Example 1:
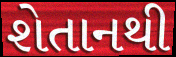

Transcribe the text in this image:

શેતાનથી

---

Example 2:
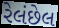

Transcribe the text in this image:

રેલંછેલ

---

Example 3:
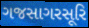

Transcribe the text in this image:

ગજસાગરસૂરિ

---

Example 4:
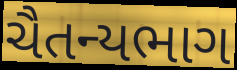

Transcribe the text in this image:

ચૈતન્યભાગ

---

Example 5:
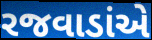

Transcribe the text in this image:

રજવાડાંએ